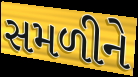
સમળીને